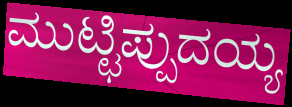
ಮುಟ್ಟಿಪ್ಪುದಯ್ಯ